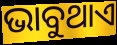
ଭାବୁଥାଏ